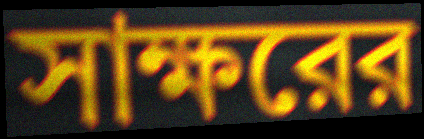
সাক্ষরের